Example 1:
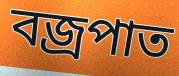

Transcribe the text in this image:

বজ্রপাত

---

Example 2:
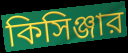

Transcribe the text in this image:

কিসিঞ্জার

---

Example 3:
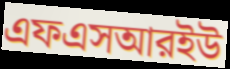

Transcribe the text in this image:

এফএসআরইউ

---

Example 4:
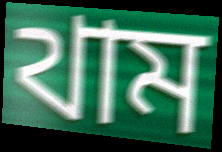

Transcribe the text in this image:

থাম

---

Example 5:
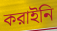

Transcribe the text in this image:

করাইনি